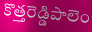
కొత్తరెడ్డిపాలెం